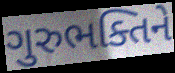
ગુરુભક્તિને